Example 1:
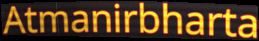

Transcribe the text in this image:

Atmanirbharta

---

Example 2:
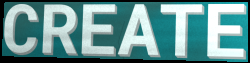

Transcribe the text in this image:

CREATE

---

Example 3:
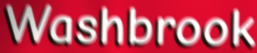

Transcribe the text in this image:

Washbrook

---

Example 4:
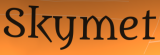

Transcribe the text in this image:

Skymet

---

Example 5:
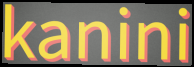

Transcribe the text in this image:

kanini